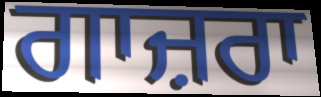
ਗਾਜ਼ਰਾ